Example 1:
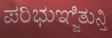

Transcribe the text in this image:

ಪರಿಭುಞ್ಜಿತುನ್ತಿ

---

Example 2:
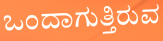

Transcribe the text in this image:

ಒಂದಾಗುತ್ತಿರುವ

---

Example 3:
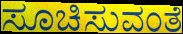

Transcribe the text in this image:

ಸೂಚಿಸುವಂತೆ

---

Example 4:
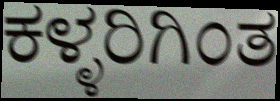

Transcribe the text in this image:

ಕಳ್ಳರಿಗಿಂತ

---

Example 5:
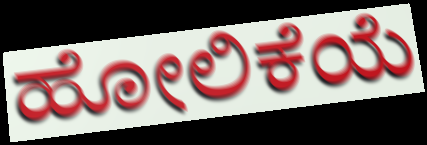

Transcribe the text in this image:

ಹೋಲಿಕೆಯೆ